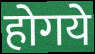
होगये